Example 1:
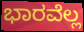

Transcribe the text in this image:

ಭಾರವೆಲ್ಲ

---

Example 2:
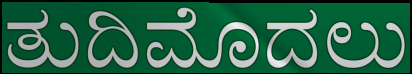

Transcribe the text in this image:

ತುದಿಮೊದಲು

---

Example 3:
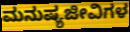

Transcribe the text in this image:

ಮನುಷ್ಯಜೀವಿಗಳ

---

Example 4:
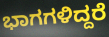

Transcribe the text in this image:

ಭಾಗಗಳಿದ್ದರೆ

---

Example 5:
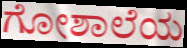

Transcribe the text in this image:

ಗೋಶಾಲೆಯ